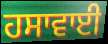
ਹਸਾਵਾਈ